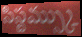
సిస్టమ్స్కు